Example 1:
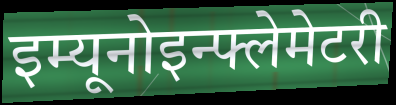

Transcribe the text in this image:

इम्यूनोइन्फ्लेमेटरी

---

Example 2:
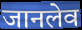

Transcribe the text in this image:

जानलेव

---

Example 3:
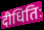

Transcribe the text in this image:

दीधितिः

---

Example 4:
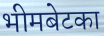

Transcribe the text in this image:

भीमबेटका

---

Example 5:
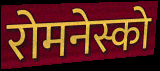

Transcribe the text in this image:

रोमनेस्को